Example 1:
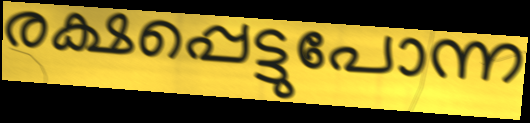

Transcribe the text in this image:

രക്ഷപ്പെട്ടുപോന്ന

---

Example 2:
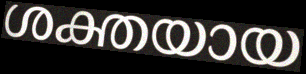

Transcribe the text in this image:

ശക്തയായ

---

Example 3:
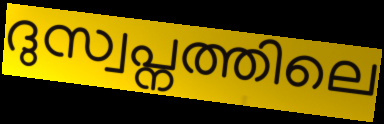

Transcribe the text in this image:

ദുസ്വപ്നത്തിലെ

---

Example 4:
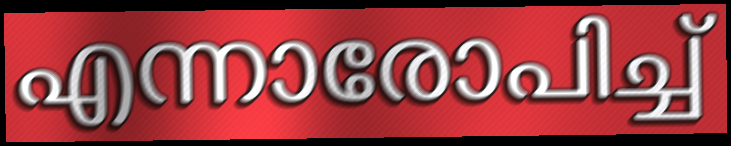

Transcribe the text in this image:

എന്നാരോപിച്ച്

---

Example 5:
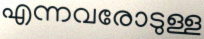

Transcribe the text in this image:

എന്നവരോടുള്ള